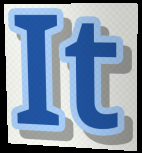
It